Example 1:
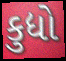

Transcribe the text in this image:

કુદ્યો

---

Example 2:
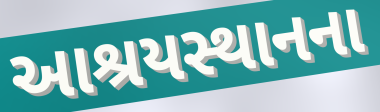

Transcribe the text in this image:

આશ્રયસ્થાનના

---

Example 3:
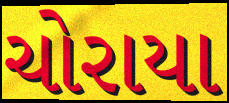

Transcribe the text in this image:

ચોરાયા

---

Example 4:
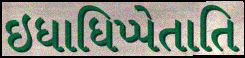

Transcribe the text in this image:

ઇધાધિપ્પેતાતિ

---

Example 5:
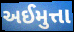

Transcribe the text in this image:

અઈમુત્તા